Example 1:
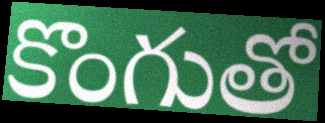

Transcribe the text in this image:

కొంగుతో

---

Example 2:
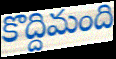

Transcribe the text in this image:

కొద్దిమంది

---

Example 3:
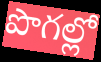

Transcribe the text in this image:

పొగల్లో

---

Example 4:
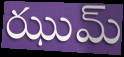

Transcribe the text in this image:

ఝుమ్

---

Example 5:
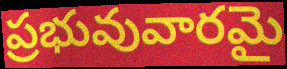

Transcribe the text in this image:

ప్రభువువారమై